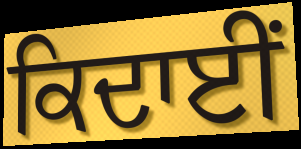
ਕਿਦਾਈਂ